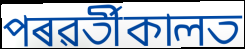
পৰৱৰ্তীকালত